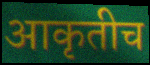
आकृतीच